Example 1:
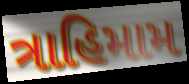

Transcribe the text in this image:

ત્રાહિમામ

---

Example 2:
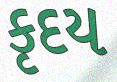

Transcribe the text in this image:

કૃદય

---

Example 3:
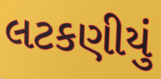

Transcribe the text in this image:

લટકણીયું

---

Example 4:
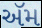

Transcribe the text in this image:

ઍમ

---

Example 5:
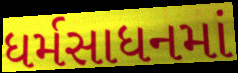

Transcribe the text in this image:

ધર્મસાધનમાં